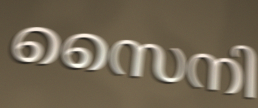
സൈനി